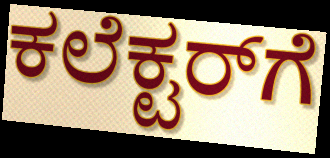
ಕಲೆಕ್ಟರ್‌ಗೆ